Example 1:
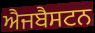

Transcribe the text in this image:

ਐਜਬੈਸਟਨ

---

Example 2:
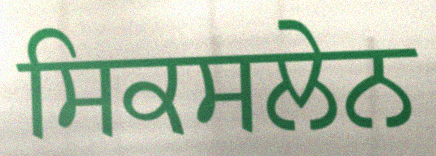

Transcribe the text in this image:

ਸਿਕਸਲੇਨ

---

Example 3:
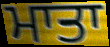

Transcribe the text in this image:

ਮਾਤਾ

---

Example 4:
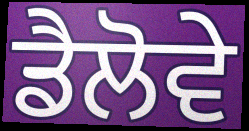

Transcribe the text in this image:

ਡੈਲੋਵੇ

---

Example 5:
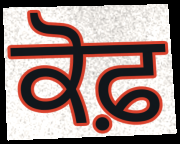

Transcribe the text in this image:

ਕੋਫ਼